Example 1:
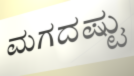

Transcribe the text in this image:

ಮಗದಷ್ಟು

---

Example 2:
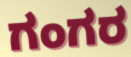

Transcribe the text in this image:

ಗಂಗರ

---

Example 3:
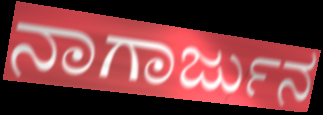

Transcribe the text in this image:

ನಾಗಾರ್ಜುನ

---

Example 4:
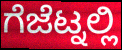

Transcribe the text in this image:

ಗೆಜೆಟ್ನಲ್ಲಿ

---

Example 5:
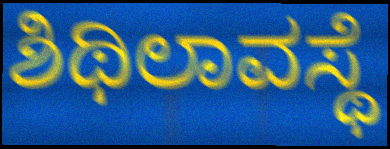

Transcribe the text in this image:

ಶಿಥಿಲಾವಸ್ಥೆ